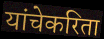
यांचेकरिता